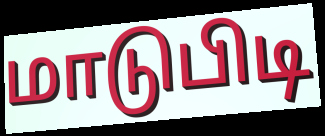
மாடுபிடி